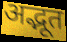
अद्भूत